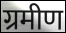
ग्रमीण